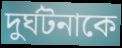
দুর্ঘটনাকে